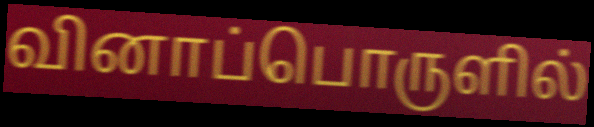
வினாப்பொருளில்